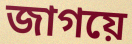
জাগয়ে